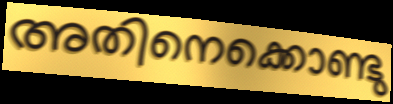
അതിനെക്കൊണ്ടു